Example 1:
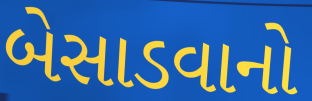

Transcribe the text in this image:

બેસાડવાનો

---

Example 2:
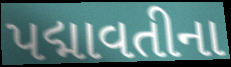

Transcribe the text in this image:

પદ્માવતીના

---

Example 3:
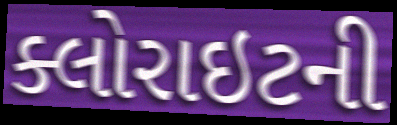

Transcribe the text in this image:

ક્લોરાઇટની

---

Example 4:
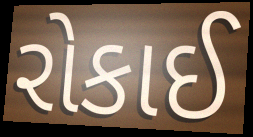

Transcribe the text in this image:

રોકાઈ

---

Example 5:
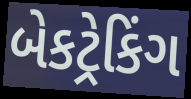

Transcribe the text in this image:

બેકટ્રેકિંગ